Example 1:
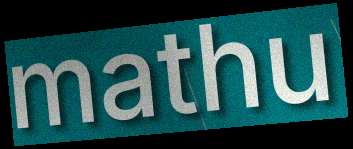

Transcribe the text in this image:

mathu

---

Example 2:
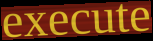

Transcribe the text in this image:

execute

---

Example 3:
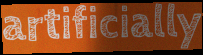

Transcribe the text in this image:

artificially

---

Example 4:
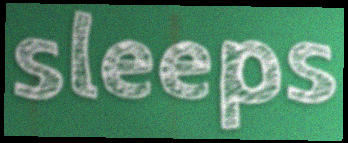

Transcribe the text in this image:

sleeps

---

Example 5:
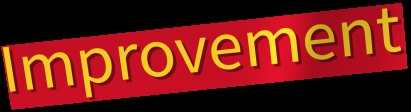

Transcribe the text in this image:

Improvement